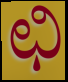
ಛಿ